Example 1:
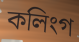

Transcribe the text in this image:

কলিংগ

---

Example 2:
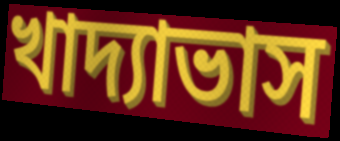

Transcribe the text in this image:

খাদ্যাভাস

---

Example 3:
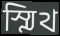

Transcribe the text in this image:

স্মিথ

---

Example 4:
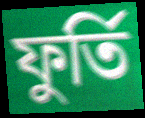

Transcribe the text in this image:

ফুৰ্তি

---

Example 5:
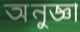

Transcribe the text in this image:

অনুজ্ঞা